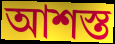
আশস্ত